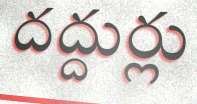
దద్దుర్లు